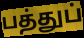
பத்துப்